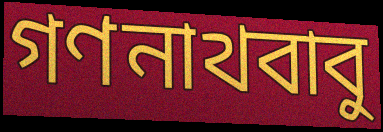
গণনাথবাবু